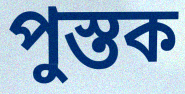
পুস্তক